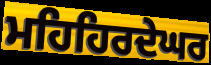
ਮਹਿਹਿਰਦੇਘਰ